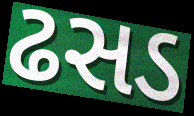
ઢસડ